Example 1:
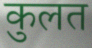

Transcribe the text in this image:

कुलत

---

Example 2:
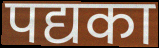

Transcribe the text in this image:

पद्यका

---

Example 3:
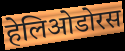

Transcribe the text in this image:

हेलिओडोरस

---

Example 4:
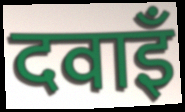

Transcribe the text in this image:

दवाइँ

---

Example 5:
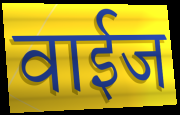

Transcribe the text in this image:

वाईज